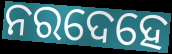
ନରଦେହେ